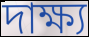
দাক্ষ্য